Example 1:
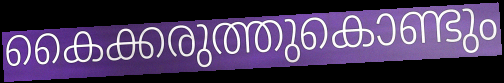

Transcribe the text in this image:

കൈക്കരുത്തുകൊണ്ടും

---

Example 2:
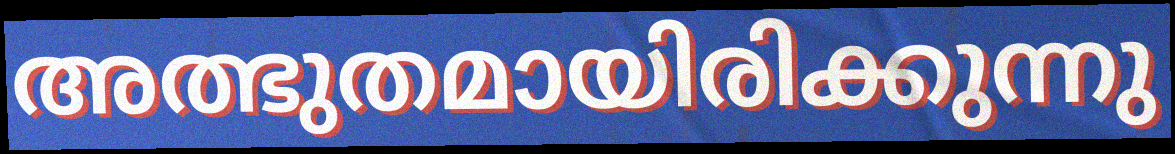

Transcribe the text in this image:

അത്ഭുതമായിരിക്കുന്നു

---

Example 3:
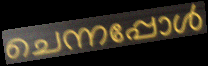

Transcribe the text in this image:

ചെന്നപ്പോൾ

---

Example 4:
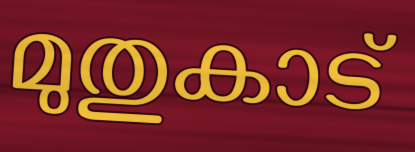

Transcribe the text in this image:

മുതുകാട്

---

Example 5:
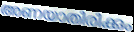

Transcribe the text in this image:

അണയാതിരിക്കും